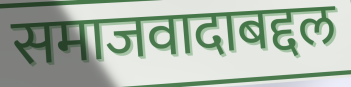
समाजवादाबद्दल